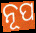
ନୂପ